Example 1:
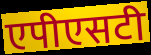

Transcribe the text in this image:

एपीएसटी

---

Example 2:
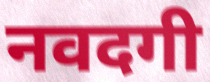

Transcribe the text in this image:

नवदगी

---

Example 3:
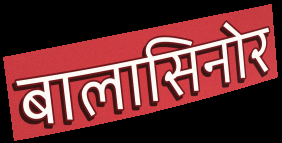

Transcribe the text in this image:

बालासिनोर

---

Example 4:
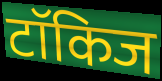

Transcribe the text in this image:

टॉकिज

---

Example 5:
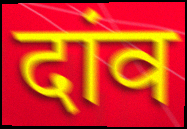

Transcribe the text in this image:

दांव